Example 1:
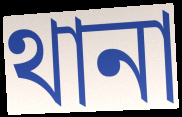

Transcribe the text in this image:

থানা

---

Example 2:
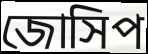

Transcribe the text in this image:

জোসিপ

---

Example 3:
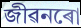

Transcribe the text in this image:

জীৱনৰো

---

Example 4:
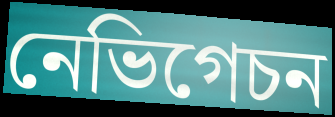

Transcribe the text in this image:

নেভিগেচন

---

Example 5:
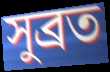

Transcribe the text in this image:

সুব্ৰত